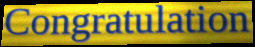
Congratulation